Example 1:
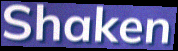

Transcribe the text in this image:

Shaken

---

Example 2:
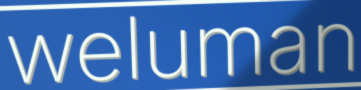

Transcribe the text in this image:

weluman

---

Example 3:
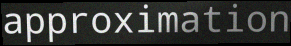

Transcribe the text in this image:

approximation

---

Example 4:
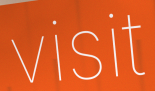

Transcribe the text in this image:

visit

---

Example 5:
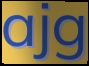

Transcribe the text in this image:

ajg